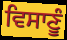
ਵਿਸਾਣੂੰ